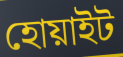
হোয়াইট